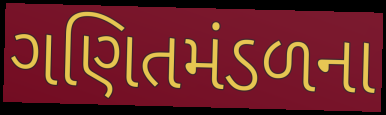
ગણિતમંડળના